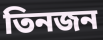
তিনজন